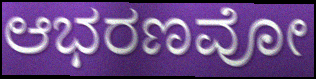
ಆಭರಣವೋ